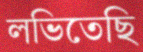
লভিতেছি